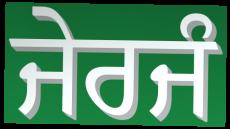
ਜੇਰਜੰ